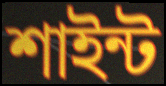
শাইন্ট